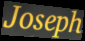
Joseph